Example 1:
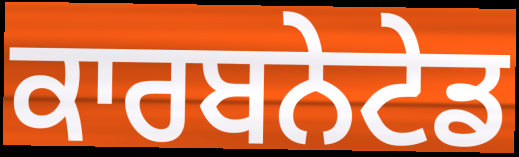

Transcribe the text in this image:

ਕਾਰਬਨੇਟੇਡ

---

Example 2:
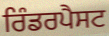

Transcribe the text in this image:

ਰਿੰਡਰਪੈਸਟ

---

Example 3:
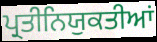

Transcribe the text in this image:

ਪ੍ਰਤੀਨਿਯੁਕਤੀਆਂ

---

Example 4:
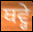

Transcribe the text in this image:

ਥਵ੍ਹੇ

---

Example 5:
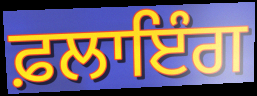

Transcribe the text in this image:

ਫ਼ਲਾਇੰਗ